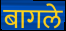
बागले